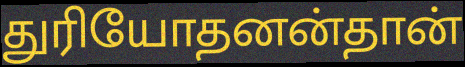
துரியோதனன்தான்